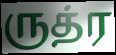
ருத்ர